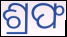
ଶ୍ରଫ